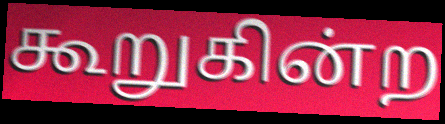
கூறுகின்ற